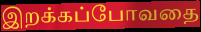
இறக்கப்போவதை